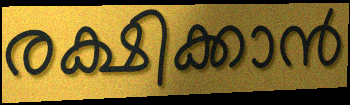
രക്ഷിക്കാൻ